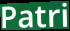
Patri